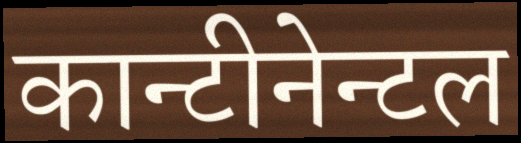
कान्टीनेन्टल